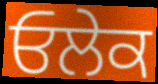
ਓਲੇਕ